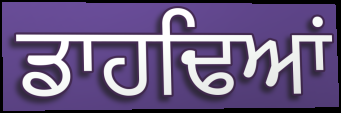
ਡਾਹਢਿਆਂ